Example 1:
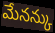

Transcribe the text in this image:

మేనన్కు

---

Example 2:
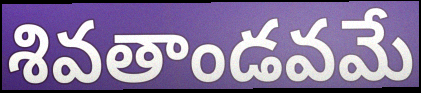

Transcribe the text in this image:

శివతాండవమే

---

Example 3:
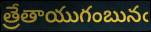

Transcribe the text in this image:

త్రేతాయుగంబునఁ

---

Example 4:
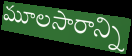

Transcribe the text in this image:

మూలసారాన్ని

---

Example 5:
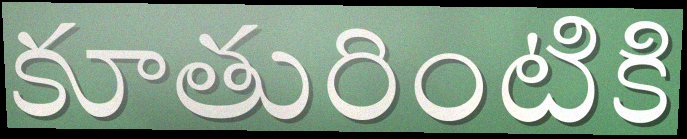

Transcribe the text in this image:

కూతురింటికి